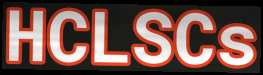
HCLSCs